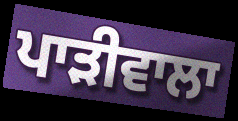
ਪਾੜੀਵਾਲਾ